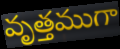
వృత్తముగా